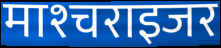
माश्चराइजर